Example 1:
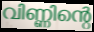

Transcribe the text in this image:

വിണ്ണിന്റെ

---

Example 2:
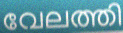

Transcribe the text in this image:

വേലത്തി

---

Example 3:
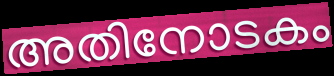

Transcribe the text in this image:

അതിനോടകം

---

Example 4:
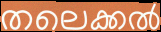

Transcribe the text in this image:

തലെക്കൽ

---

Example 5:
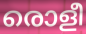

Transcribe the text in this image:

രൊളീ